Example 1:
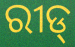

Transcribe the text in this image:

ରୀଡ୍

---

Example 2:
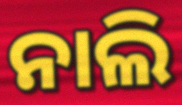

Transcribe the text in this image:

ନାଲି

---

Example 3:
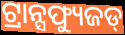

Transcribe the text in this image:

ଟ୍ରାନ୍ସଫ୍ୟୁଜଡ୍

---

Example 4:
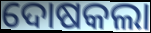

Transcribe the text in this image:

ଦୋଷକଲା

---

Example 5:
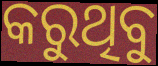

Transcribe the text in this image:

କରୁଥିବୁ